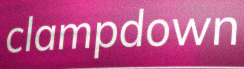
clampdown